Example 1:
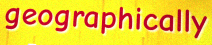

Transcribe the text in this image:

geographically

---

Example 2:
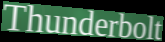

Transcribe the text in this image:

Thunderbolt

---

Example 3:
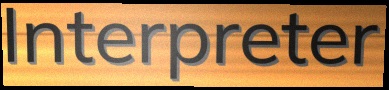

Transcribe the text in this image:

Interpreter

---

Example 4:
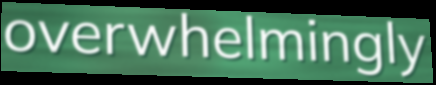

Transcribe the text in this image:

overwhelmingly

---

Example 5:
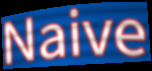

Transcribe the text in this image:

Naive